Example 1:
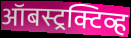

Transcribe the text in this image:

ऑबस्ट्रक्टिव्ह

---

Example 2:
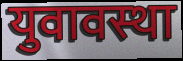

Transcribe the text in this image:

युवावस्था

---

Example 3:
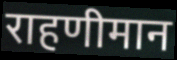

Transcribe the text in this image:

राहणीमान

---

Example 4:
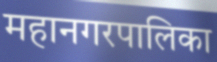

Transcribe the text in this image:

महानगरपालिका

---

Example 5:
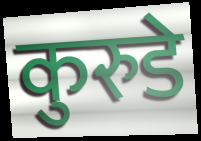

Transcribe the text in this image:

कुरुडे